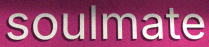
soulmate